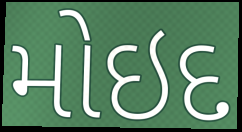
મોઇદ